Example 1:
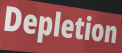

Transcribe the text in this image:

Depletion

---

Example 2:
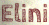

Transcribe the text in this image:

Elini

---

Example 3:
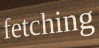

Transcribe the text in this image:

fetching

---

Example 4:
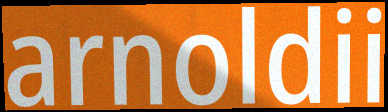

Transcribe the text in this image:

arnoldii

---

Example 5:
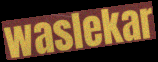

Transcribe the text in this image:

waslekar